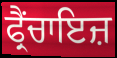
ਫ੍ਰੈਂਚਾਇਜ਼